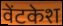
वेंटकेश